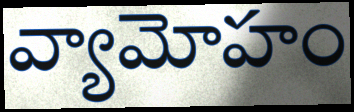
వ్యామోహం